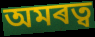
অমৰত্ব